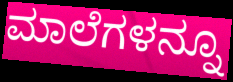
ಮಾಲೆಗಳನ್ನೂ